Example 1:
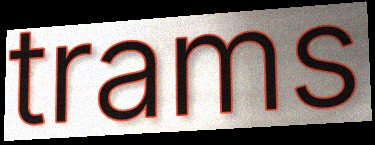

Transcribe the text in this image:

trams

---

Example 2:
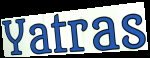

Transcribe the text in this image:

Yatras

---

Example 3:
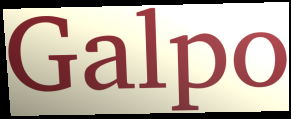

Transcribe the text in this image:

Galpo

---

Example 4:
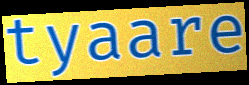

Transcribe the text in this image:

tyaare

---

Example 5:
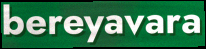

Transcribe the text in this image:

bereyavara